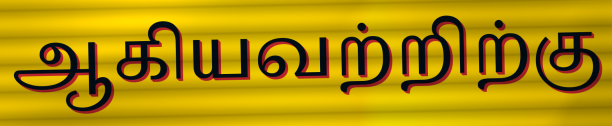
ஆகியவற்றிற்கு